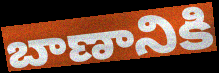
బాణానికి